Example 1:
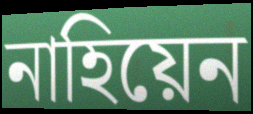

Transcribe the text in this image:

নাহিয়েন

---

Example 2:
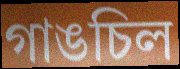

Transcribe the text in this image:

গাঙচিল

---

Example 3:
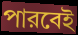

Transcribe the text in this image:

পারবেই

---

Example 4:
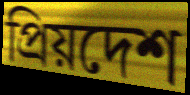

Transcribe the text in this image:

প্রিয়দেশ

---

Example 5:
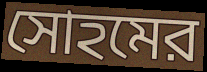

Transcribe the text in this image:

সোহমের